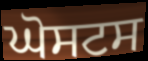
ਘੋਸਟਸ